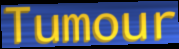
Tumour